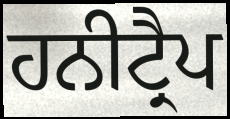
ਹਨੀਟ੍ਰੈਪ